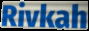
Rivkah